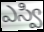
ఎస్వి